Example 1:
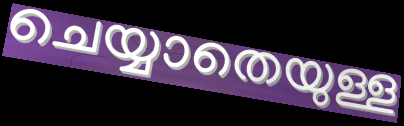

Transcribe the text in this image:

ചെയ്യാതെയുള്ള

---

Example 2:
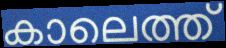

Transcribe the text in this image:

കാലെത്ത്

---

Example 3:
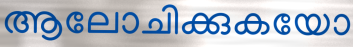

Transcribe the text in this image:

ആലോചിക്കുകയോ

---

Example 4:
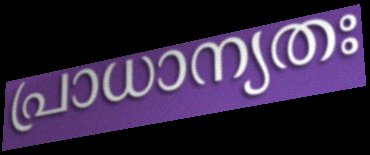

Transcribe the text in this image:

പ്രാധാന്യതഃ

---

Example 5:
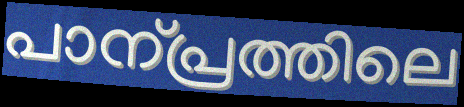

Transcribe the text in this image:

പാന്പ്രത്തിലെ